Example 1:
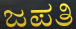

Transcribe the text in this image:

ಜಪತಿ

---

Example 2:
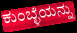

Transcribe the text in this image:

ಕುಂಬ್ಳೆಯನ್ನು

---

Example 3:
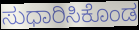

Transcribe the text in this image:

ಸುಧಾರಿಸಿಕೊಂಡ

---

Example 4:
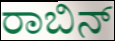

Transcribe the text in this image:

ರಾಬಿನ್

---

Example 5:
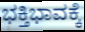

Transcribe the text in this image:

ಭಕ್ತಿಭಾವಕ್ಕೆ